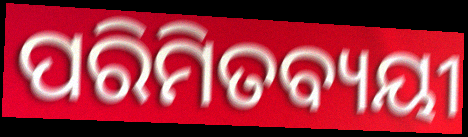
ପରିମିତବ୍ୟୟୀ